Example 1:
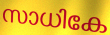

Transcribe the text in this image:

സാധികേ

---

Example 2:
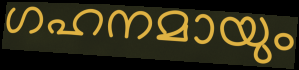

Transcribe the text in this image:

ഗഹനമായും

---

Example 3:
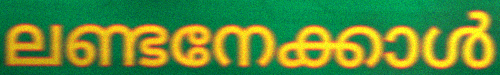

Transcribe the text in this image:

ലണ്ടനേക്കാൾ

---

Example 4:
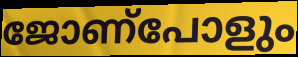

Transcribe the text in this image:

ജോണ്പോളും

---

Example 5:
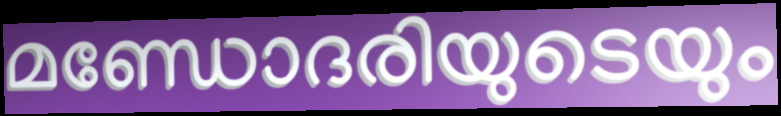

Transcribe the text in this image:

മണ്ഡോദരിയുടെയും